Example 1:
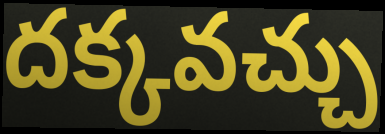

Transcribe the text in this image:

దక్కవచ్చు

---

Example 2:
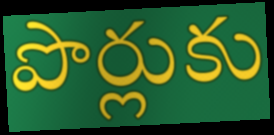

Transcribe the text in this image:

పొర్లుకు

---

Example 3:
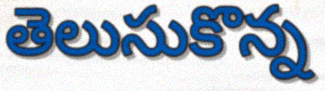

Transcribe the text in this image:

తెలుసుకొన్న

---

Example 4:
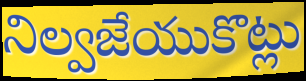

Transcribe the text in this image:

నిల్వజేయుకొట్లు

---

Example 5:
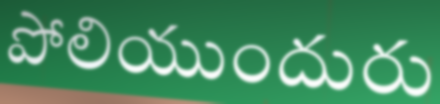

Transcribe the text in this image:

పోలియుందురు